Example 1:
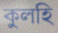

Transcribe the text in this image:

কুলহি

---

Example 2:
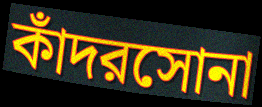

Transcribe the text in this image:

কাঁদরসোনা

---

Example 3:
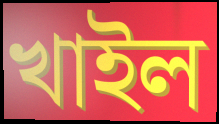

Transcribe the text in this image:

খাইল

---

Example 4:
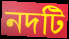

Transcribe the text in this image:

নদটি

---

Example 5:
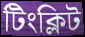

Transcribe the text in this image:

টিংক্লিট